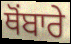
ਥੋਂਬਾਰੇ